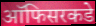
ऑफिसरकडे